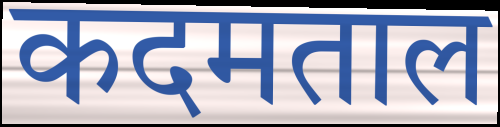
कदमताल